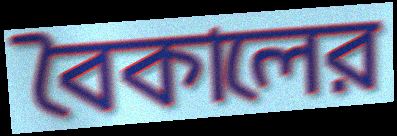
বৈকালের